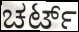
ಚರ್ಟ್